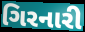
ગિરનારી